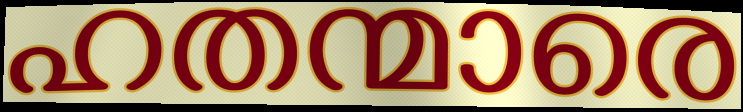
ഹതന്മാരെ